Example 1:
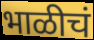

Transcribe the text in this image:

भाळीचं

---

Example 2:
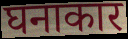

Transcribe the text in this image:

घनाकार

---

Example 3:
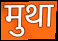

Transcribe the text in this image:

मुथा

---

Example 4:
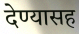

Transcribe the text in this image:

देण्यासह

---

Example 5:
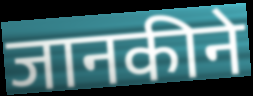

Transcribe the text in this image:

जानकीने